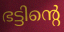
ഭട്ടിന്റെ